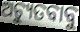
ଅଚ୍ୟୁତବାବୁ